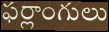
ఫర్లాంగులు